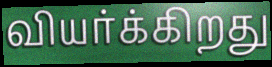
வியர்க்கிறது